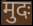
मुदः